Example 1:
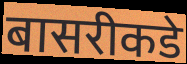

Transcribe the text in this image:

बासरीकडे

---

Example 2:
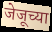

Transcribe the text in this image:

जेजूच्या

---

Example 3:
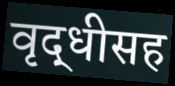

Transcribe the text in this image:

वृद्धीसह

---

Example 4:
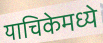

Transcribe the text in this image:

याचिकेमध्ये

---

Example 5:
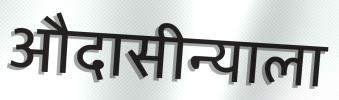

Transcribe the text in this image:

औदासीन्याला